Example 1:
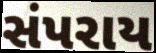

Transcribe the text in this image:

સંપરાય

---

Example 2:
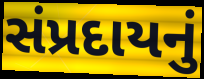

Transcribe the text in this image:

સંપ્રદાયનું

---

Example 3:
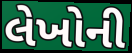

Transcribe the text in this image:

લેખોની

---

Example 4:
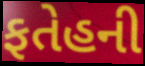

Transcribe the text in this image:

ફતેહની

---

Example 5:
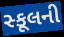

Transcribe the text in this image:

સ્કૂલની